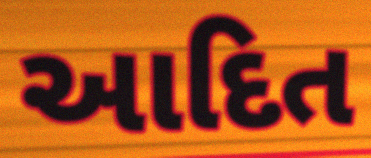
આદિત